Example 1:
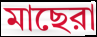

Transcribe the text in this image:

মাছেরা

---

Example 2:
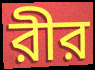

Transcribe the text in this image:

রীর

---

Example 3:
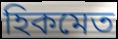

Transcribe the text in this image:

হিকমেত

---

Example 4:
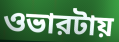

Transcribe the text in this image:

ওভারটায়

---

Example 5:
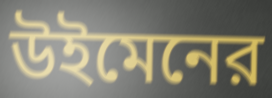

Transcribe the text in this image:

উইমেনের